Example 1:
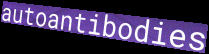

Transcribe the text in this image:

autoantibodies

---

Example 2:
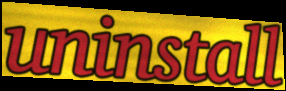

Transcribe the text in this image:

uninstall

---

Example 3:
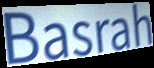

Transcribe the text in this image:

Basrah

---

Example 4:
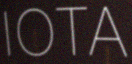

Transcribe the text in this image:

IOTA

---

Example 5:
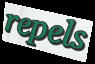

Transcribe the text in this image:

repels